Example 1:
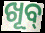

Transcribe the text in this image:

ଖୂବ୍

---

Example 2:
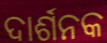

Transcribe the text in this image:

ଦାର୍ଶନକ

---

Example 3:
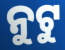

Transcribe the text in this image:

ନୁଟୁ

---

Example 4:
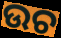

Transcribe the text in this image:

ଉଚ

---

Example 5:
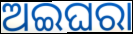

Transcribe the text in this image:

ଅଇଘରା